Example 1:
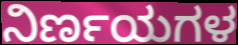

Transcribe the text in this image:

ನಿರ್ಣಯಗಳ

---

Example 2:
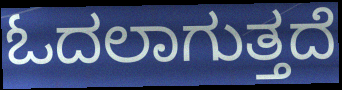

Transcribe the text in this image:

ಓದಲಾಗುತ್ತದೆ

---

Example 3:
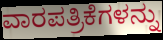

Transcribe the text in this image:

ವಾರಪತ್ರಿಕೆಗಳನ್ನು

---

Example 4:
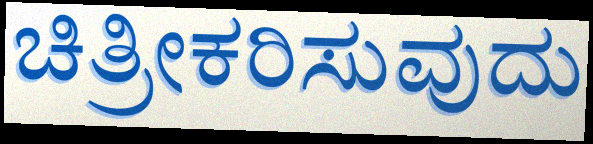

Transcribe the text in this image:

ಚಿತ್ರೀಕರಿಸುವುದು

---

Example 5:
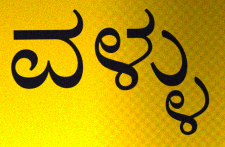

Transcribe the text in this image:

ವಳ್ಳು